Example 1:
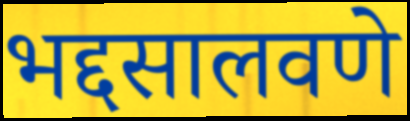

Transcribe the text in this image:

भद्दसालवणे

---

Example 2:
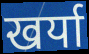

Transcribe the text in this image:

खर्या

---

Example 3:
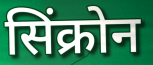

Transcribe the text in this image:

सिंक्रोन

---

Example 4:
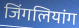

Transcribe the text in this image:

जिंगलियांग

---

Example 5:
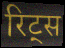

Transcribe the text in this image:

रिट्स